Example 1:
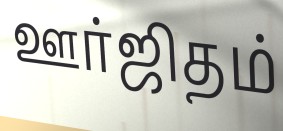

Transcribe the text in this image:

ஊர்ஜிதம்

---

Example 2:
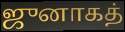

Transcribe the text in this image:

ஜுனாகத்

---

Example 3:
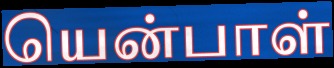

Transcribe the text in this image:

யென்பாள்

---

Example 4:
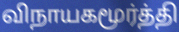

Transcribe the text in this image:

விநாயகமூர்த்தி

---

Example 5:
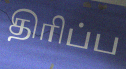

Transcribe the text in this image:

திரிப்ப